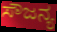
ಸೌಜನ್ಯ